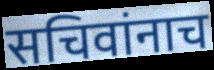
सचिवांनाच